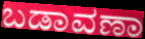
ಬಡಾವಣಾ